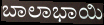
ಬಾಲಾಭಾಯಿ